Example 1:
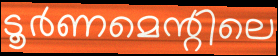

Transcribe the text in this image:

ടൂർണമെന്റിലെ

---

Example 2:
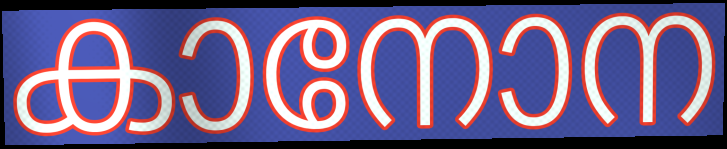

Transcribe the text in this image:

കാനോന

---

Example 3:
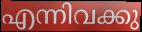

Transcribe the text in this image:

എന്നിവക്കു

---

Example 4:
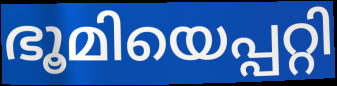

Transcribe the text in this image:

ഭൂമിയെപ്പറ്റി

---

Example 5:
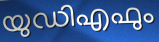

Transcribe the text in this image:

യുഡിഎഫും